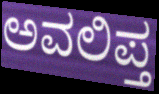
ಅವಲಿಪ್ತ